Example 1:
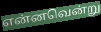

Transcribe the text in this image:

என்னவென்று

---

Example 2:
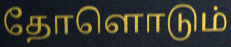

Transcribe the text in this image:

தோளொடும்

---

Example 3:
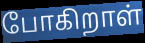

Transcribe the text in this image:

போகிறாள்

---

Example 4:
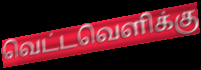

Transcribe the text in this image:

வெட்டவெளிக்கு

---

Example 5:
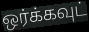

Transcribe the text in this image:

ஒர்க்கவுட்